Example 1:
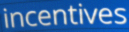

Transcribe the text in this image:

incentives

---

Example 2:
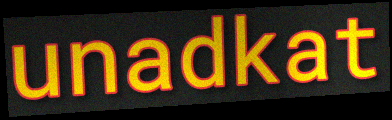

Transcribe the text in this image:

unadkat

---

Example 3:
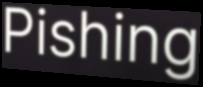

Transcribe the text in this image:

Pishing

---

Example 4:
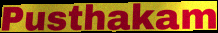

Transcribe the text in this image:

Pusthakam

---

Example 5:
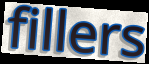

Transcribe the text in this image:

fillers